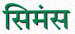
सिमंस